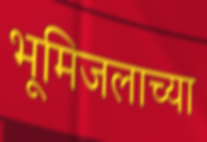
भूमिजलाच्या